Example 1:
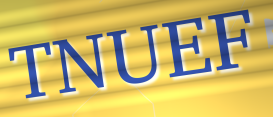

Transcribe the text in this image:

TNUEF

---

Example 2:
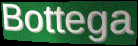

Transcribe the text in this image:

Bottega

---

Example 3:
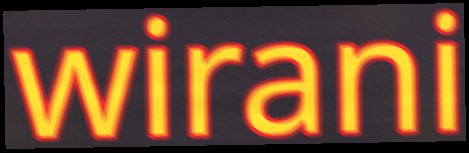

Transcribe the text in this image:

wirani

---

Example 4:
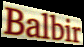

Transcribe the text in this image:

Balbir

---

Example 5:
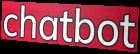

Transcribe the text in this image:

chatbot